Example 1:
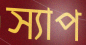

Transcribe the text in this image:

স্যাপ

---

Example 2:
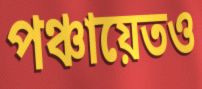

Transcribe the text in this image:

পঞ্চায়েতও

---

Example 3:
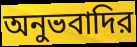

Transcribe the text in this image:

অনুভবাদির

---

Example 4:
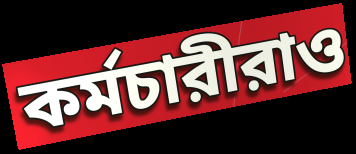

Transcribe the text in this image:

কর্মচারীরাও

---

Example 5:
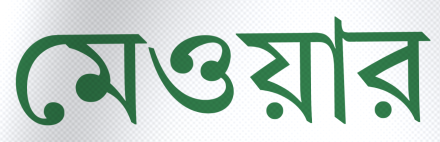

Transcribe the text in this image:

মেওয়ার